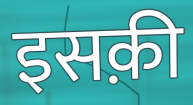
इसक़ी